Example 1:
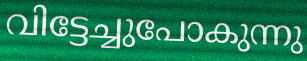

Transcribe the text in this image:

വിട്ടേച്ചുപോകുന്നു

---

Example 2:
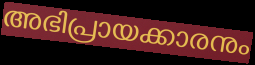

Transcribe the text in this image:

അഭിപ്രായക്കാരനും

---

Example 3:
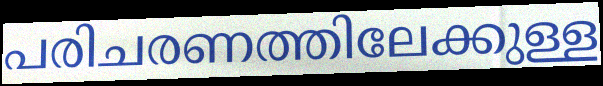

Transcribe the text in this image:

പരിചരണത്തിലേക്കുള്ള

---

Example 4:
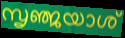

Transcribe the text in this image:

സൃഞ്ജയാശ്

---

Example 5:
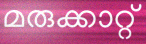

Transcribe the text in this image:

മരുക്കാറ്റ്